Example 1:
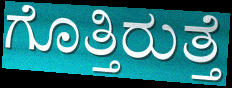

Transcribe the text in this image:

ಗೊತ್ತಿರುತ್ತೆ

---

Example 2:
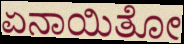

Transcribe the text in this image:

ಏನಾಯಿತೋ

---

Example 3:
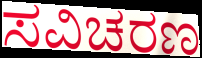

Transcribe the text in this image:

ಸವಿಚರಣ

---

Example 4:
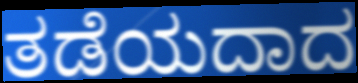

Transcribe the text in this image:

ತಡೆಯದಾದ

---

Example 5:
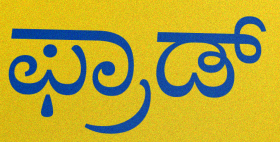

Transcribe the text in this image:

ಫ್ರಾಡ್